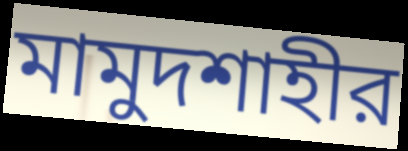
মামুদশাহীর